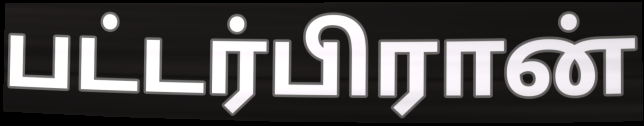
பட்டர்பிரான்